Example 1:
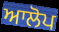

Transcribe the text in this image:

ਆਲੋਪ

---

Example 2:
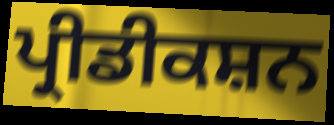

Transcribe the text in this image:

ਪ੍ਰੀਡੀਕਸ਼ਨ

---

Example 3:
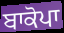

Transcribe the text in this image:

ਬਾਕੋਪਾ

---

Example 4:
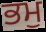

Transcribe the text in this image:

ਭਮੁ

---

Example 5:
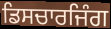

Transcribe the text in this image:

ਡਿਸਚਾਰਜਿੰਗ